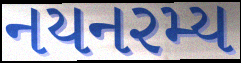
નયનરમ્ય